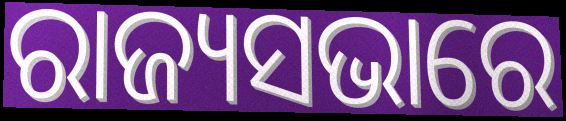
ରାଜ୍ୟସଭାରେ